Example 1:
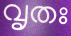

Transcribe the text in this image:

വൃതഃ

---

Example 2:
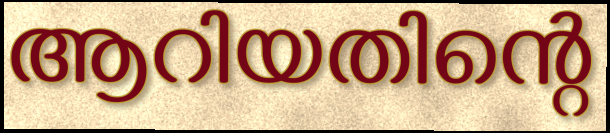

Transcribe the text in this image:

ആറിയതിന്റെ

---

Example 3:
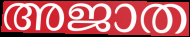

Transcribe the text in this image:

അജാത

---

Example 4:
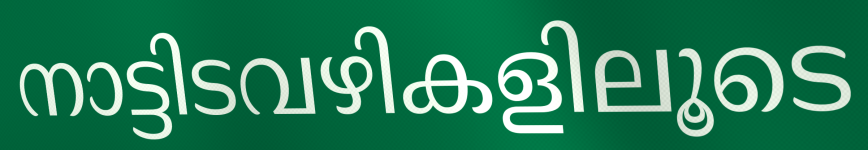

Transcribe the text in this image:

നാട്ടിടവഴികളിലൂടെ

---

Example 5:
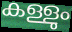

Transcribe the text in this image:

കള്ളും